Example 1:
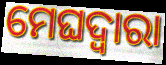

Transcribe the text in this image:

ମେଘଦ୍ୱାରା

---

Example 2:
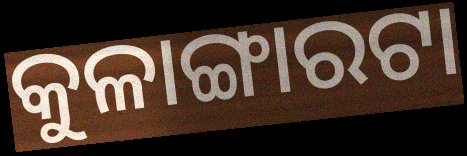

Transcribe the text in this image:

କୁଳାଙ୍ଗାରଟା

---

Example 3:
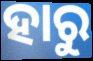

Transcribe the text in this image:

ହାରୁ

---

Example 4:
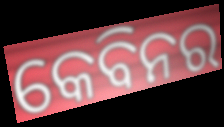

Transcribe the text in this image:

କେବିନର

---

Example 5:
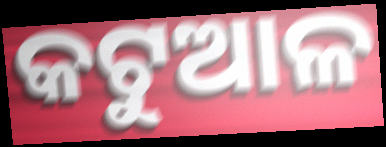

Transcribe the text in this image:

କଟୁଆଳ